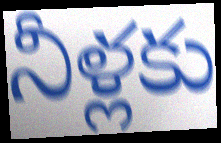
నీళ్లకు